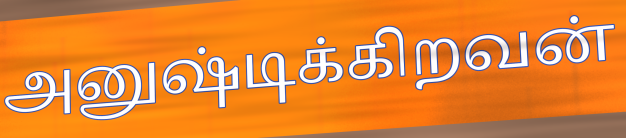
அனுஷ்டிக்கிறவன்